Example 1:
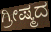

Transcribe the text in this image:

ಗ್ರೀಷ್ಮದ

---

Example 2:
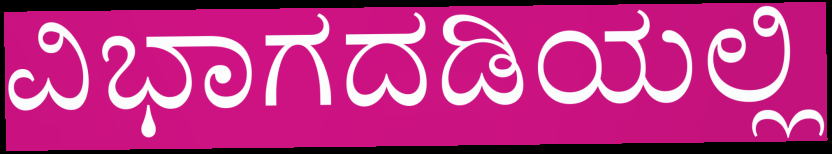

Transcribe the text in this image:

ವಿಭಾಗದಡಿಯಲ್ಲಿ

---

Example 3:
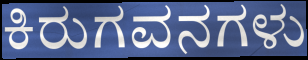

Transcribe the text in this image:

ಕಿರುಗವನಗಳು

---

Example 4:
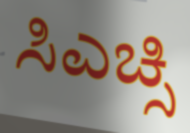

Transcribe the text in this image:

ಸಿಎಚ್ಸಿ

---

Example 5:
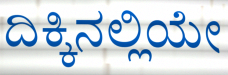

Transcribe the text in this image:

ದಿಕ್ಕಿನಲ್ಲಿಯೇ